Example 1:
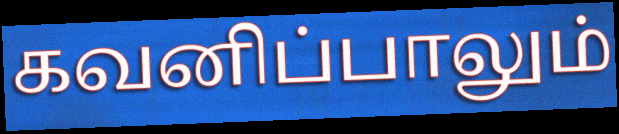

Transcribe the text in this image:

கவனிப்பாலும்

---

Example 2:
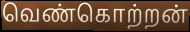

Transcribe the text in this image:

வெண்கொற்றன்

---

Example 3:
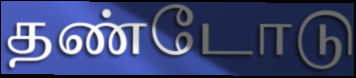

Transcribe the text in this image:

தண்டோடு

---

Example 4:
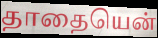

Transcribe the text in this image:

தாதையென்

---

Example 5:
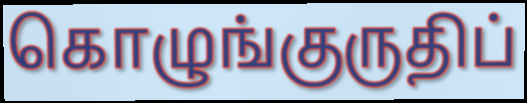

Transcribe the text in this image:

கொழுங்குருதிப்